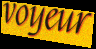
voyeur